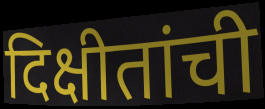
दिक्षीतांची